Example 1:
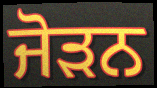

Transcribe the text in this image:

ਜੋੜਨ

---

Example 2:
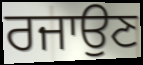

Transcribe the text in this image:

ਰਜਾਉਣ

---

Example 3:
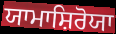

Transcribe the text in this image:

ਯਾਮਾਸ਼ਿਰੋਯਾ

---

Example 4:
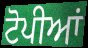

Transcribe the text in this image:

ਟੋਪੀਆਂ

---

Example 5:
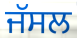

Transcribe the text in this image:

ਜੱਸਲ